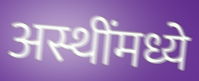
अस्थींमध्ये